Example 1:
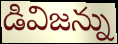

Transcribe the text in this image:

డివిజన్ను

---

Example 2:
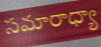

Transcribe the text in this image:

సమారాధ్యా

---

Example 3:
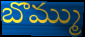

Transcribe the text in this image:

బొమ్ము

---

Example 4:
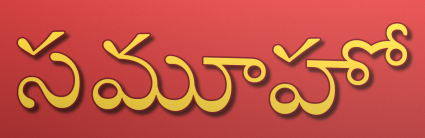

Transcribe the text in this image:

సమూహో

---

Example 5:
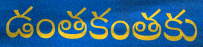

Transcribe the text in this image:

డంతకంతకు